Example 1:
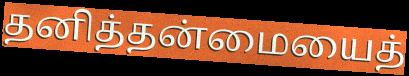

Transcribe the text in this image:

தனித்தன்மையைத்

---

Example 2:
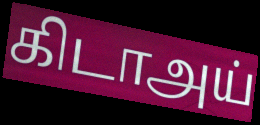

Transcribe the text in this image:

கிடாஅய்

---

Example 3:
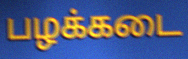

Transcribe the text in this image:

பழக்கடை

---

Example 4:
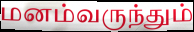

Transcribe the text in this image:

மனம்வருந்தும்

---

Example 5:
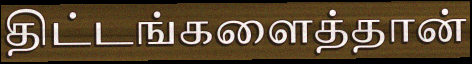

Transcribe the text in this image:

திட்டங்களைத்தான்